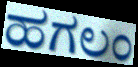
ಹಗಲಂ